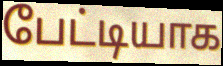
பேட்டியாக